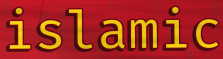
islamic